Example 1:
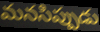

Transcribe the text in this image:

మనసిప్పుడు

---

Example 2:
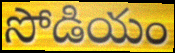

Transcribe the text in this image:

సోడియం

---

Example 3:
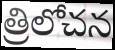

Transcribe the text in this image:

త్రిలోచన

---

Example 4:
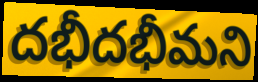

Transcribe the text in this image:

దభీదభీమని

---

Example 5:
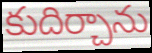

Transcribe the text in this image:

కుదిర్చాను